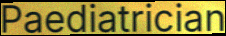
Paediatrician